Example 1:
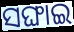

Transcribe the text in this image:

ସଙ୍ଘାଇ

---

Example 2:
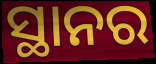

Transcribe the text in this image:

ସ୍ଥାନର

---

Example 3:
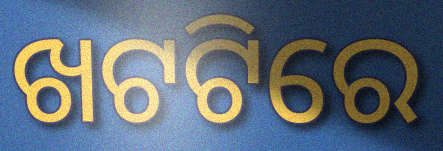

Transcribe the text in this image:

ଖଟଟିରେ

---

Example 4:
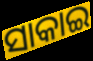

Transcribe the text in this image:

ସାକାଇ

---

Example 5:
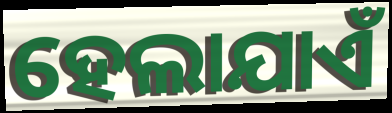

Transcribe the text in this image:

ହେଲାଯାଏଁ